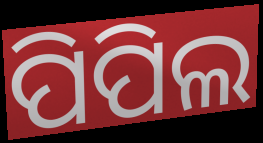
ପିପିଲ